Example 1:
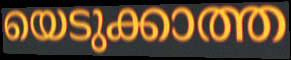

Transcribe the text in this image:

യെടുക്കാത്ത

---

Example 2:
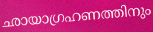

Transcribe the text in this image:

ഛായാഗ്രഹണത്തിനും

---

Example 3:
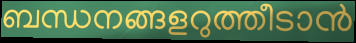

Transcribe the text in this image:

ബന്ധനങ്ങളറുത്തീടാൻ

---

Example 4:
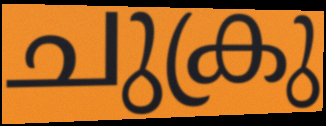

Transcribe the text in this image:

ചുക്രു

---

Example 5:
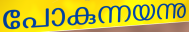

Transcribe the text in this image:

പോകുന്നയന്നു